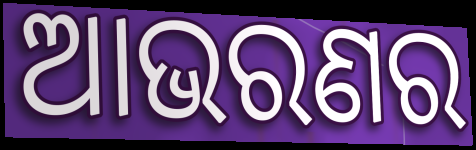
ଆଭରଣର